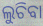
ଲୁଚିବା